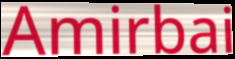
Amirbai